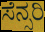
ಸೆನ್ಸರಿ